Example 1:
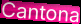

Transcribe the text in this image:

Cantona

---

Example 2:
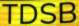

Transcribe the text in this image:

TDSB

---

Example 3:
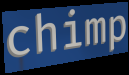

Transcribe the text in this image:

chimp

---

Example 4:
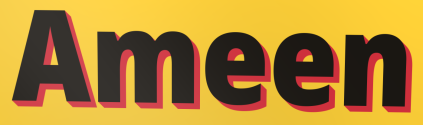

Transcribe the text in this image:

Ameen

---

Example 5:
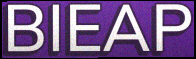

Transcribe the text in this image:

BIEAP